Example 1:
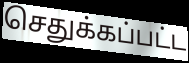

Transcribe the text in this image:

செதுக்கப்பட்ட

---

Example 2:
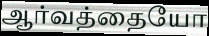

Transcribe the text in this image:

ஆர்வத்தையோ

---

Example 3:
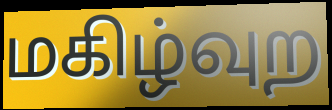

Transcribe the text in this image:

மகிழ்வுற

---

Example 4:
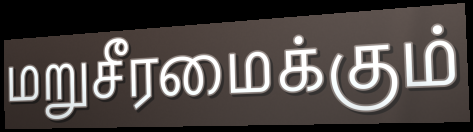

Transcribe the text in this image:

மறுசீரமைக்கும்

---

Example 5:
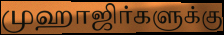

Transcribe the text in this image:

முஹாஜிர்களுக்கு